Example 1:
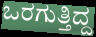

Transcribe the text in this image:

ಒರಗುತ್ತಿದ್ದ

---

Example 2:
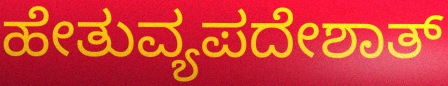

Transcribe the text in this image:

ಹೇತುವ್ಯಪದೇಶಾತ್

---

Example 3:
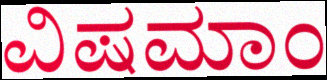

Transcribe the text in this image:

ವಿಷಮಾಂ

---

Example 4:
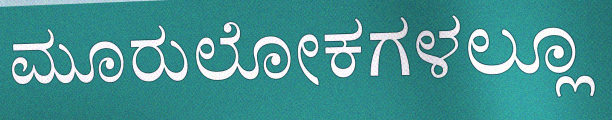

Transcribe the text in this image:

ಮೂರುಲೋಕಗಳಲ್ಲೂ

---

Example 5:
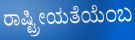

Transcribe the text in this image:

ರಾಷ್ಟ್ರೀಯತೆಯೆಂಬ